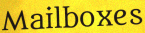
Mailboxes